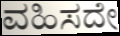
ವಹಿಸದೇ